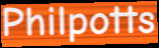
Philpotts